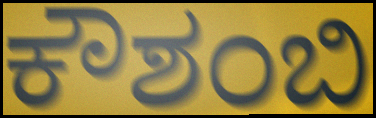
ಕೌಶಂಬಿ